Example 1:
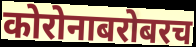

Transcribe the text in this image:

कोरोनाबरोबरच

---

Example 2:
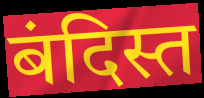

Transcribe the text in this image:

बंदिस्त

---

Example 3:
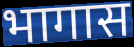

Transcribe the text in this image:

भागास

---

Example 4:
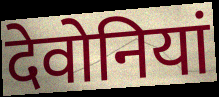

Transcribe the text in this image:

देवोनियां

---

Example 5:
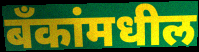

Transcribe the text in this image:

बँकांमधील